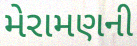
મેરામણની